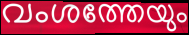
വംശത്തേയും